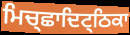
ਮਿਚ੍ਛਾਦਿਟ੍ਠਿਕਾ